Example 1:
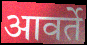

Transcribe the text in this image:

आवर्ते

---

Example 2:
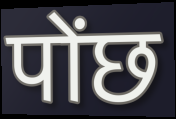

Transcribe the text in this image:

पोंछ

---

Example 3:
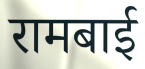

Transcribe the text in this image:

रामबाई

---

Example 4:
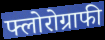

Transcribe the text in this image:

फ्लोरोग्राफी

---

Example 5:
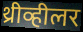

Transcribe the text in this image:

थ्रीव्हीलर